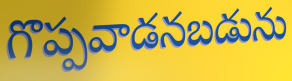
గొప్పవాడనబడును